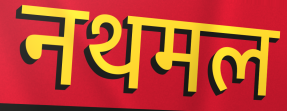
नथमल